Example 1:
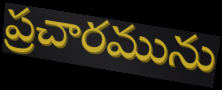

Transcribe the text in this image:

ప్రచారమును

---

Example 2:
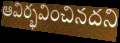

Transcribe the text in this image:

ఆవిర్భవించినదని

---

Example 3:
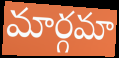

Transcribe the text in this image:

మార్గమా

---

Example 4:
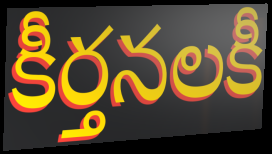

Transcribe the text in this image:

కీర్తనలకీ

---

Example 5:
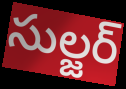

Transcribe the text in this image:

సుల్జర్